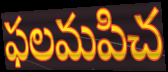
ఫలమపిచ